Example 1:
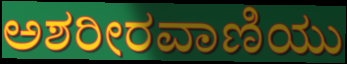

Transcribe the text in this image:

ಅಶರೀರವಾಣಿಯು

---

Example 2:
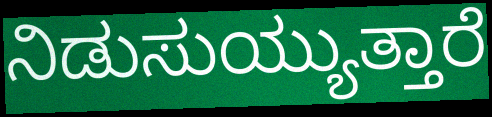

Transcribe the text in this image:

ನಿಡುಸುಯ್ಯುತ್ತಾರೆ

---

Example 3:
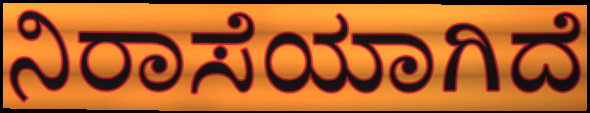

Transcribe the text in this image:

ನಿರಾಸೆಯಾಗಿದೆ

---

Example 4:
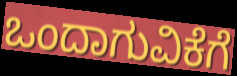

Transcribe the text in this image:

ಒಂದಾಗುವಿಕೆಗೆ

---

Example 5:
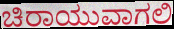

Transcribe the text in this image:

ಚಿರಾಯುವಾಗಲಿ